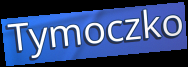
Tymoczko